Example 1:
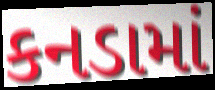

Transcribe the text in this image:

કનડામાં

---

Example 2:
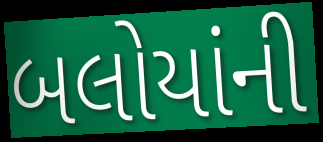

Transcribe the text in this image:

બલોયાંની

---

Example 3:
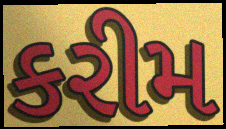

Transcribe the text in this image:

કરીમ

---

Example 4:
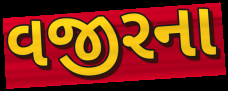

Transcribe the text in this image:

વજીરના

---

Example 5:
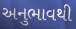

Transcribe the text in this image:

અનુભાવથી